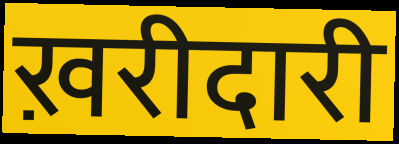
ख़रीदारी